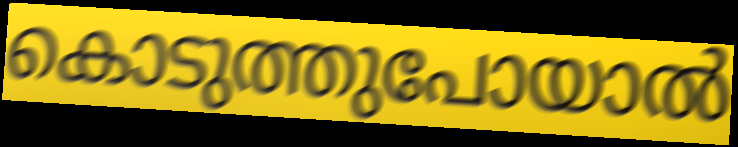
കൊടുത്തുപോയാൽ